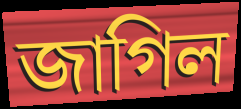
জাগিল